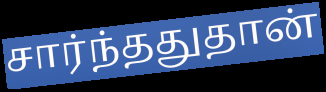
சார்ந்ததுதான்